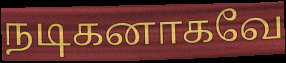
நடிகனாகவே